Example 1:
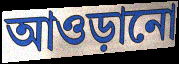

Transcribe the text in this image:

আওড়ানো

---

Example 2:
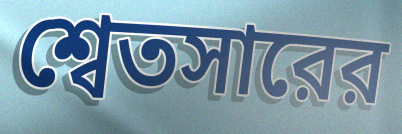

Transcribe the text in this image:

শ্বেতসারের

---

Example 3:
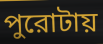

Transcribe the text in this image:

পুরোটায়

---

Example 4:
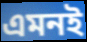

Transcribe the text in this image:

এমনই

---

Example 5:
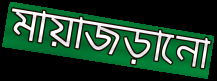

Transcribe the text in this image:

মায়াজড়ানো